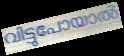
വിട്ടുപോയാൽ